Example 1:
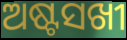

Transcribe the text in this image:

ଅଷ୍ଟସଖୀ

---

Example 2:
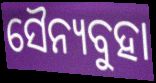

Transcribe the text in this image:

ସୈନ୍ୟବୁହା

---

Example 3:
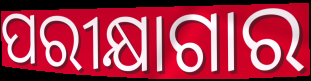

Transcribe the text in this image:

ପରୀକ୍ଷାଗାର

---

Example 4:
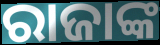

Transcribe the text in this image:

ରାଜାଙ୍କ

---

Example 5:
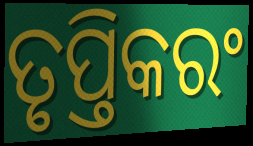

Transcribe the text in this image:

ତୃପ୍ତିକରଂ